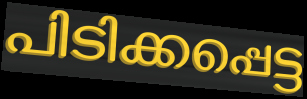
പിടിക്കപ്പെട്ട